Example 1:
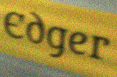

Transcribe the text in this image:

Edger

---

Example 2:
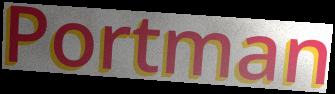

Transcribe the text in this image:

Portman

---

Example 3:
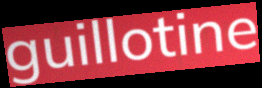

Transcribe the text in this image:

guillotine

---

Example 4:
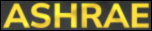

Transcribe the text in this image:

ASHRAE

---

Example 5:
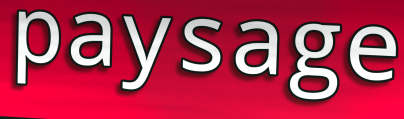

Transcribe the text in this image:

paysage